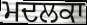
ਮਦਲਕਾ